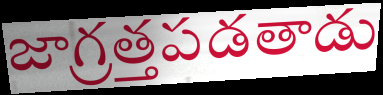
జాగ్రత్తపడతాడు